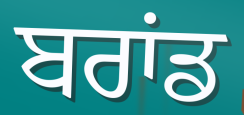
ਬਰਾਂਡ